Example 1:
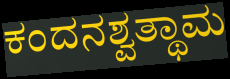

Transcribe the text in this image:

ಕಂದನಶ್ವತ್ಥಾಮ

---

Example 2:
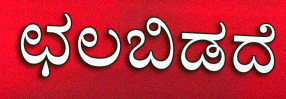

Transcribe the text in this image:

ಛಲಬಿಡದೆ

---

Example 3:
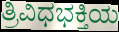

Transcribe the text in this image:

ತ್ರಿವಿಧಭಕ್ತಿಯ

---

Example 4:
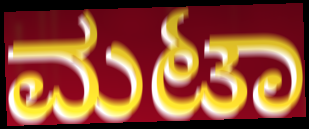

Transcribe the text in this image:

ಮಟಾ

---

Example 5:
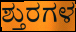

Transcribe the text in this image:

ಶ್ತುರಗಳ